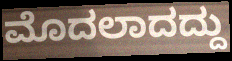
ಮೊದಲಾದದ್ದು